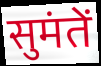
सुमंतें